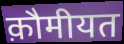
क़ौमीयत